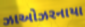
ઝાઓઝરનાયા